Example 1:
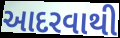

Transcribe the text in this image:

આદરવાથી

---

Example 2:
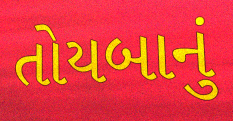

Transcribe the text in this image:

તોયબાનું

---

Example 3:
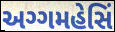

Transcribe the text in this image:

અગ્ગમહેસિં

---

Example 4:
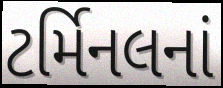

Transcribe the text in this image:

ટર્મિનલનાં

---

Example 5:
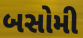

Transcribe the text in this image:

બસોમી